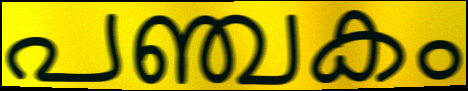
പഞ്ചകം